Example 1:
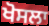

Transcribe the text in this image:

ਖੋਸਲਾ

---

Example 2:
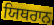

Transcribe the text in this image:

ਯਿਥਰਾਨ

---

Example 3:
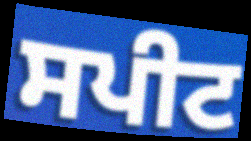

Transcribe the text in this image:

ਸਪੀਟ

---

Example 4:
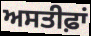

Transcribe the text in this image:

ਅਸਤੀਫ਼ਾਂ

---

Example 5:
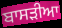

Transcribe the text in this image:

ਬਾਸੜੀਆ